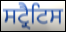
ਸਟ੍ਰੈਟਿਸ